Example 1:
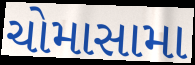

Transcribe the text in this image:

ચોમાસામા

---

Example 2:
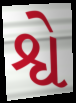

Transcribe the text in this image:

શ્વે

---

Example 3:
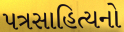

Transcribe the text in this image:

પત્રસાહિત્યનો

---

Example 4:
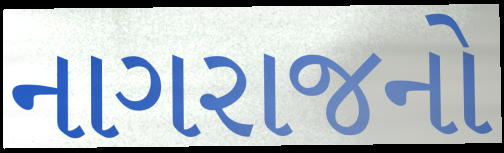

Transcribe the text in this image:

નાગરાજનો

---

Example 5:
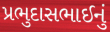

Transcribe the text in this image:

પ્રભુદાસભાઈનું